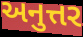
અનુત્તર